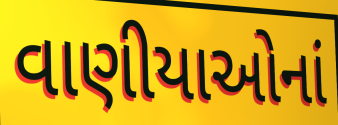
વાણીયાઓનાં